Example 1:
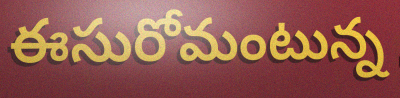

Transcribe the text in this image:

ఈసురోమంటున్న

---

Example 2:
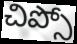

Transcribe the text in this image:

చిప్సో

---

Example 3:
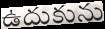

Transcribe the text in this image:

ఉదుకును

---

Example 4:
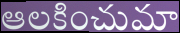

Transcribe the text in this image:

ఆలకించుమా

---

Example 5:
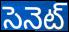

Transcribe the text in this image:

సెనెట్